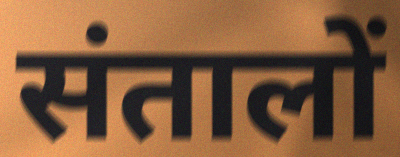
संतालों